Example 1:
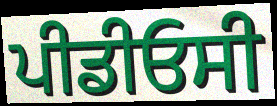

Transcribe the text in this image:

ਪੀਡੀਓਸੀ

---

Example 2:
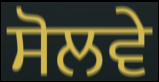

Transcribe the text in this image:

ਸੋਲਵੇ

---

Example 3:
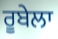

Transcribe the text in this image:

ਰੂਬੇਲਾ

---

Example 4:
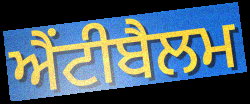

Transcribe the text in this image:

ਐਂਟੀਬੈਲਮ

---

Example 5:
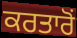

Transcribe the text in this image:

ਕਰਤਾਰੋਂ